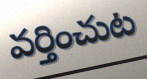
వర్తించుట